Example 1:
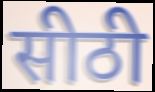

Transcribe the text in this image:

सीठी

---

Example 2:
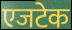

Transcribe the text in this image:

एजटेक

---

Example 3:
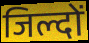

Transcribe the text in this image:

जिल्दों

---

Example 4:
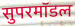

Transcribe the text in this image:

सुपरमॉडल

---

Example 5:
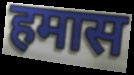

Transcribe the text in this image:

हमास